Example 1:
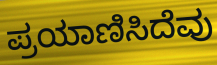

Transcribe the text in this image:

ಪ್ರಯಾಣಿಸಿದೆವು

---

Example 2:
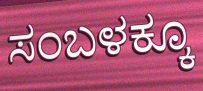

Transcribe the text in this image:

ಸಂಬಳಕ್ಕೂ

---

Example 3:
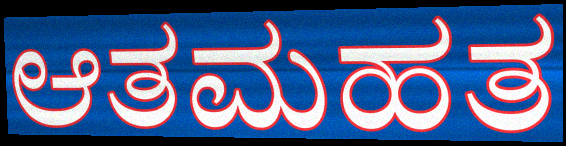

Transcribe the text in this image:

ಆತಮಹತ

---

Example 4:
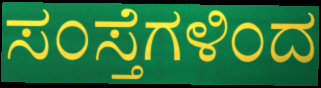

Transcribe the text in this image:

ಸಂಸ್ತೆಗಳಿಂದ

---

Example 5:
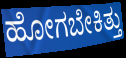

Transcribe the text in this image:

ಹೋಗಬೇಕಿತ್ತು